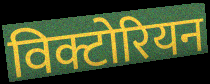
विक्टोरियन